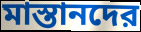
মাস্তানদের